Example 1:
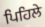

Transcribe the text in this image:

ਪਿਹਿਲੇ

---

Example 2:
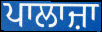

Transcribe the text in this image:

ਪਾਲਾਜ਼ਾ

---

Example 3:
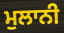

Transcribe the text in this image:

ਮੁਲਾਨੀ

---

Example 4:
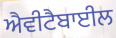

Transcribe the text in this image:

ਐਵੀਟੈਬਾਈਲ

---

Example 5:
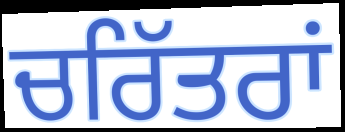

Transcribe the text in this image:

ਚਰਿੱਤਰਾਂ